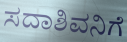
ಸದಾಶಿವನಿಗೆ